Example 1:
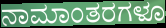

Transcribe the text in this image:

ನಾಮಾಂತರಗಳೂ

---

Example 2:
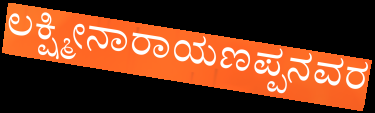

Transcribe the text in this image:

ಲಕ್ಷ್ಮೀನಾರಾಯಣಪ್ಪನವರ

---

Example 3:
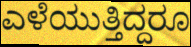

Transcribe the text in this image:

ಎಳೆಯುತ್ತಿದ್ದರೂ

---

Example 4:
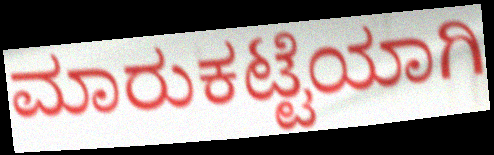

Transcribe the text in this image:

ಮಾರುಕಟ್ಟೆಯಾಗಿ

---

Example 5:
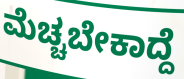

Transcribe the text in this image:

ಮೆಚ್ಚಬೇಕಾದ್ದೆ